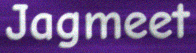
Jagmeet